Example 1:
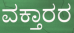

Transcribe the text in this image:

ವಕ್ತಾರರ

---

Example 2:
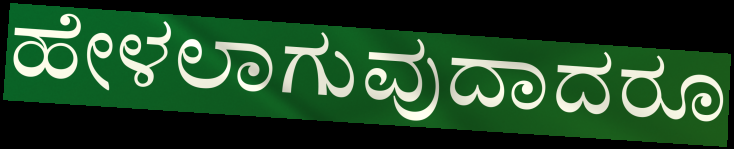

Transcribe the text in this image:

ಹೇಳಲಾಗುವುದಾದರೂ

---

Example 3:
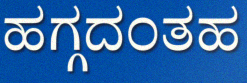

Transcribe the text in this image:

ಹಗ್ಗದಂತಹ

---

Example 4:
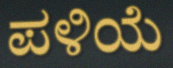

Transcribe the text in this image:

ಪಳಿಯೆ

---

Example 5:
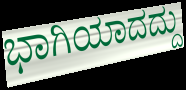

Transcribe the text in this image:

ಭಾಗಿಯಾದದ್ದು